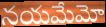
నయమేమో